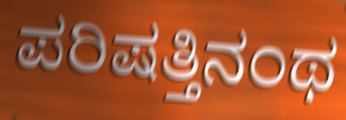
ಪರಿಷತ್ತಿನಂಥ